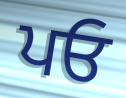
ਪਓ